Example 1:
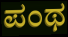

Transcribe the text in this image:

ಪಂಥ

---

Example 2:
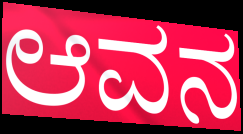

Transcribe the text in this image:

ಆವನ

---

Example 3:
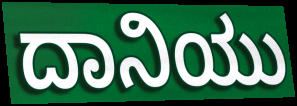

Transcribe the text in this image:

ದಾನಿಯು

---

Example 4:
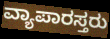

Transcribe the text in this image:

ವ್ಯಾಪಾರಸ್ತರು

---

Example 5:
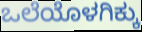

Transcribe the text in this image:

ಒಲೆಯೊಳಗಿಕ್ಕು